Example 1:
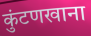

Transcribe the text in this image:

कुंटणखाना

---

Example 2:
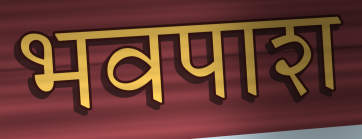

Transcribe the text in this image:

भवपाश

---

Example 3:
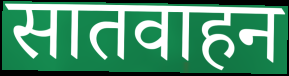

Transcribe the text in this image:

सातवाहन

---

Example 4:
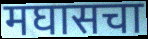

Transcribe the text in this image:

मघासचा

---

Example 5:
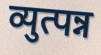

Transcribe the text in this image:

व्युत्पन्न